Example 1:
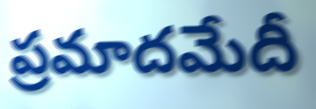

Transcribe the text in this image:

ప్రమాదమేదీ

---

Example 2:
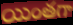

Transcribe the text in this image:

యింతగా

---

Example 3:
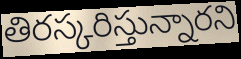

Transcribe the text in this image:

తిరస్కరిస్తున్నారని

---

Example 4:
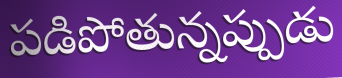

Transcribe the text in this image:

పడిపోతున్నప్పుడు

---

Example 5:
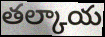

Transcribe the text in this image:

తల్కాయ